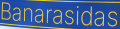
Banarasidas